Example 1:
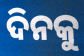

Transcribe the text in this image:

ଦିନକୁ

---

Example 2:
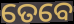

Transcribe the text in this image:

ତେବେ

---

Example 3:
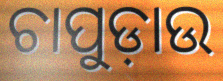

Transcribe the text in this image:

ଚାପୁଡ଼ାଉ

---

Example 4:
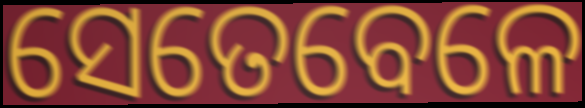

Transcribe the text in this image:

ସେତେବେଳେ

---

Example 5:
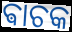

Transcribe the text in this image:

ଵାଚକ